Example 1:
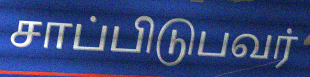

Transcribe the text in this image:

சாப்பிடுபவர்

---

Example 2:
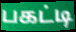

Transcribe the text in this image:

பகட்டி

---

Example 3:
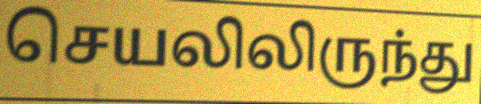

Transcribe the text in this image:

செயலிலிருந்து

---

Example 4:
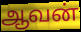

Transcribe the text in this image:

ஆவன்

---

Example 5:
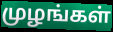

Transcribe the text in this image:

முழங்கள்